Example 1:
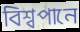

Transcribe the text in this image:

বিশ্বপানে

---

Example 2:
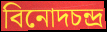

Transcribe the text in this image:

বিনোদচন্দ্র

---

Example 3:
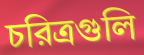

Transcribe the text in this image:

চরিত্রগুলি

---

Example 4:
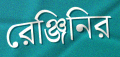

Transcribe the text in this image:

রেঞ্জিনির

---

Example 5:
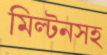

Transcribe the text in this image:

মিল্টনসহ